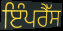
ਇੰਪਰੈੱਸ